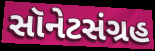
સૉનેટસંગ્રહ